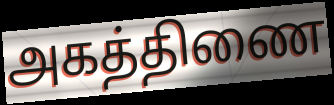
அகத்திணை